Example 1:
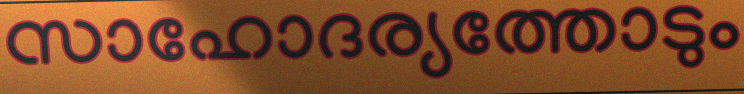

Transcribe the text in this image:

സാഹോദര്യത്തോടും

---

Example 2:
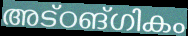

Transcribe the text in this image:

അട്ഠങ്ഗികം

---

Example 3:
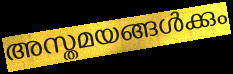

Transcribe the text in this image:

അസ്തമയങ്ങൾക്കും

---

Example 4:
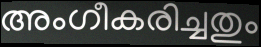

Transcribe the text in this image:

അംഗീകരിച്ചതും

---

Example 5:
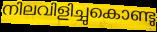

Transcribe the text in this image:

നിലവിളിച്ചുകൊണ്ടു